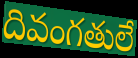
దివంగతులే